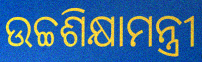
ଉଚ୍ଚଶିକ୍ଷାମନ୍ତ୍ରୀ